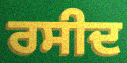
ਰਸੀਦ